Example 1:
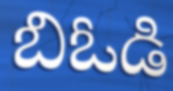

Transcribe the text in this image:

బిఓడి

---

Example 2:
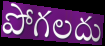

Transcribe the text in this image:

పోగలదు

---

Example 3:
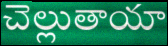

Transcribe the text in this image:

చెల్లుతాయా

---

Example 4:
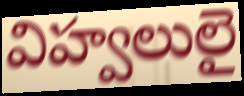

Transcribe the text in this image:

విహ్వలులై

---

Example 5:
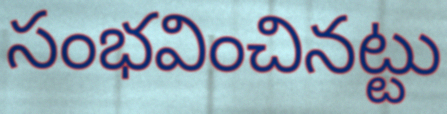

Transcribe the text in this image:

సంభవించినట్టు